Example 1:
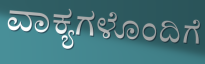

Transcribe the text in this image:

ವಾಕ್ಯಗಳೊಂದಿಗೆ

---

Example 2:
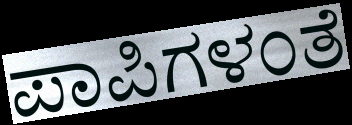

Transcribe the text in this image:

ಪಾಪಿಗಳಂತೆ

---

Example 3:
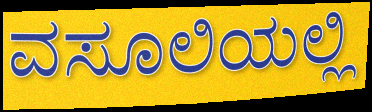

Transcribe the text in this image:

ವಸೂಲಿಯಲ್ಲಿ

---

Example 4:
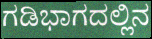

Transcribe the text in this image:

ಗಡಿಭಾಗದಲ್ಲಿನ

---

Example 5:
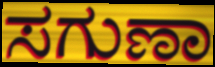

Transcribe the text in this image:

ಸಗುಣಾ